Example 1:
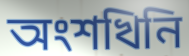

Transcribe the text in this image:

অংশখিনি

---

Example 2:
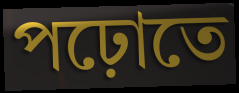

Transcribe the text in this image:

পঢ়োতে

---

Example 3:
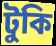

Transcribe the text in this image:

টুকি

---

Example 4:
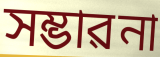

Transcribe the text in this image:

সম্ভাৱনা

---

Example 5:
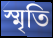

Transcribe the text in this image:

স্মৃতি